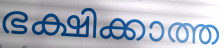
ഭക്ഷിക്കാത്ത